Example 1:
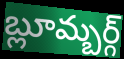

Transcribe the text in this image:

బ్లూమ్బర్గ్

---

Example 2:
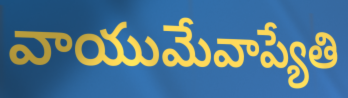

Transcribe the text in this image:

వాయుమేవాప్యేతి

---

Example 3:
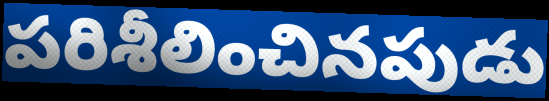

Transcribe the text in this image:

పరిశీలించినపుడు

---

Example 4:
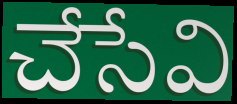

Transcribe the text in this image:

చేసేవి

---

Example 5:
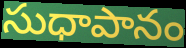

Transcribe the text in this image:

సుధాపానం